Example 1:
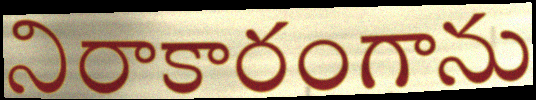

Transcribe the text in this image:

నిరాకారంగాను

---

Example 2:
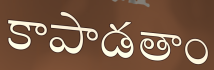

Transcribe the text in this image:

కాపాడతాం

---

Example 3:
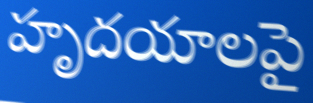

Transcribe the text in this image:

హృదయాలపై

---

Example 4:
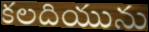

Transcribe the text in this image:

కలదియును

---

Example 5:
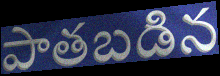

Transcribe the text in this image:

పాతబడిన